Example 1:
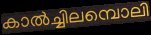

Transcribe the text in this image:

കാൽച്ചിലമ്പൊലി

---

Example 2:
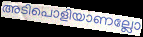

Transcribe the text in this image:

അടിപൊളിയാണല്ലോ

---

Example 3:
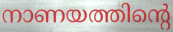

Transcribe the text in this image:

നാണയത്തിന്റെ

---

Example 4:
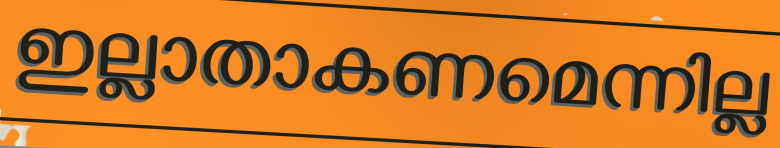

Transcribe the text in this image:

ഇല്ലാതാകണമെന്നില്ല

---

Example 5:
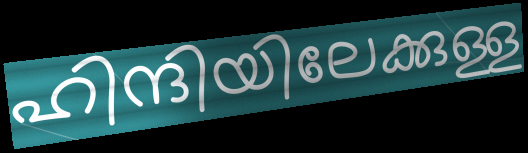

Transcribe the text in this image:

ഹിന്ദിയിലേക്കുള്ള